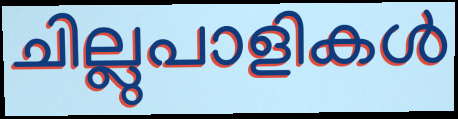
ചില്ലുപാളികൾ